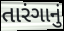
તારંગાનું